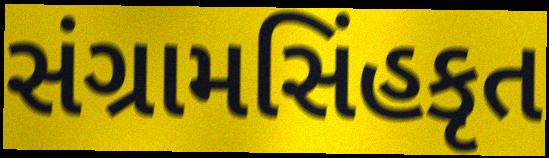
સંગ્રામસિંહકૃત